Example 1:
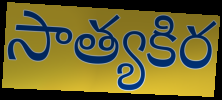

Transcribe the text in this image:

సాత్యకిర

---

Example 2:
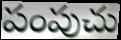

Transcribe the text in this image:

పంపుచు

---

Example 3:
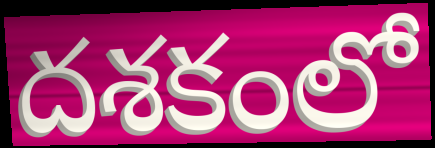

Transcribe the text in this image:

దశకంలో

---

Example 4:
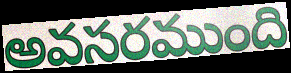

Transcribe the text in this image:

అవసరముంది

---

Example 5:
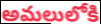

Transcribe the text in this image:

అమలులోకి